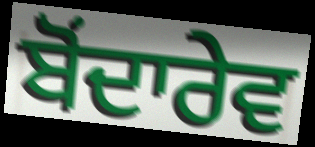
ਬੋਂਦਾਰੇਵ